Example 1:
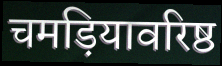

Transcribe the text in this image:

चमड़ियावरिष्ठ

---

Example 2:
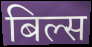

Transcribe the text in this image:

बिल्स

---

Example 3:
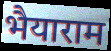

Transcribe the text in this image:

भैयाराम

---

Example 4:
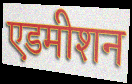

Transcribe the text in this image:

एडमीशन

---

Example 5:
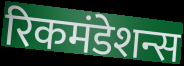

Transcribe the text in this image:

रिकमंडेशन्स